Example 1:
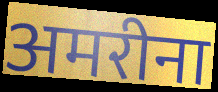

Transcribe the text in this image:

अमरीना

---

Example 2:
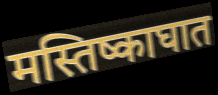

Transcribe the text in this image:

मस्तिष्काघात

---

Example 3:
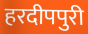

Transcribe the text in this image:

हरदीपपुरी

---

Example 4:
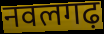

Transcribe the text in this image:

नवलगढ़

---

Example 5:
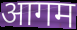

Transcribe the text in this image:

आगम